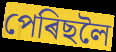
পেৰিছলৈ